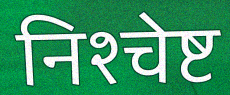
निश्चेष्ट